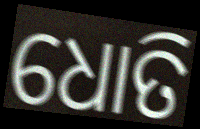
ଧୋତି